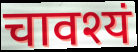
चावश्यं